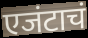
एजंटाचं